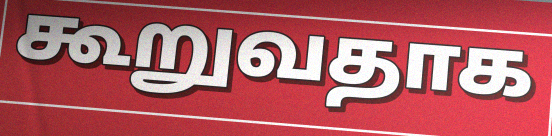
கூறுவதாக